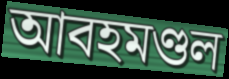
আবহমণ্ডল